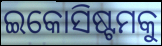
ଇକୋସିଷ୍ଟମକୁ